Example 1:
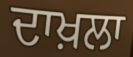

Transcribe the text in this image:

ਦਾਖ਼ਲਾ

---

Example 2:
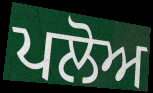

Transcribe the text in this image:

ਪਲੋਅ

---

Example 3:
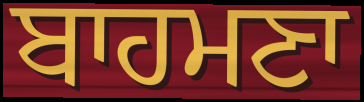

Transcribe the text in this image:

ਬਾਹਮਣਾ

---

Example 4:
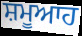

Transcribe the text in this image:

ਸ਼ਮੂਆਹ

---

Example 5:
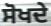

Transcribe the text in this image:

ਸੋਖਦੇ